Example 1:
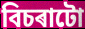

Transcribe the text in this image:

বিচৰাটো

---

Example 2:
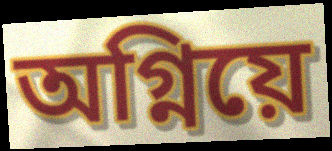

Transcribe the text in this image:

অগ্নিয়ে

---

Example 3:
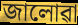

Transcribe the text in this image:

জালোৱা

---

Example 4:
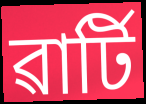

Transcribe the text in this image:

ৱাৰ্টি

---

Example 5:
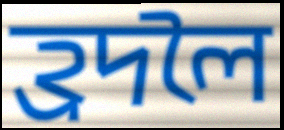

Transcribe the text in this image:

হ্ৰদলৈ